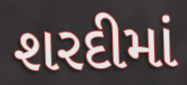
શરદીમાં